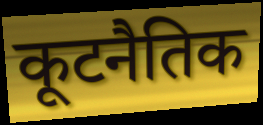
कूटनैतिक